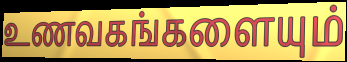
உணவகங்களையும்